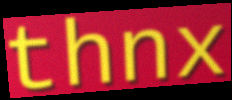
thnx